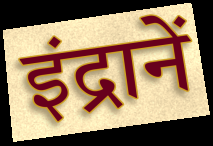
इंद्रानें